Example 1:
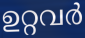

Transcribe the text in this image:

ഉറ്റവർ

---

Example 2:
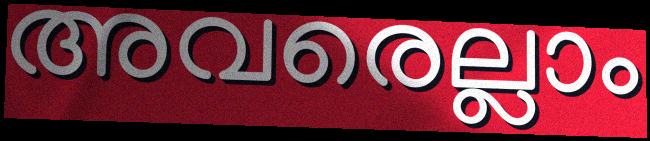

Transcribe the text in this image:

അവരെല്ലാം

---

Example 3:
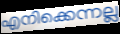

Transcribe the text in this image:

എനിക്കെന്നല്ല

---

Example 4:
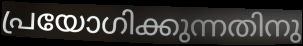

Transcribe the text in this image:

പ്രയോഗിക്കുന്നതിനു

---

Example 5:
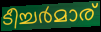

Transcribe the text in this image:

ടീച്ചർമാര്